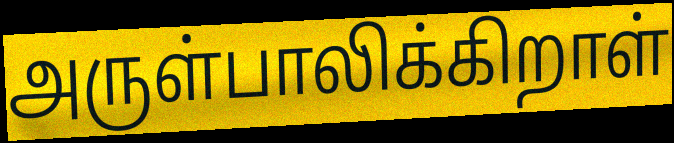
அருள்பாலிக்கிறாள்